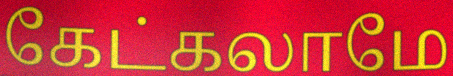
கேட்கலாமே